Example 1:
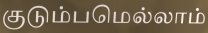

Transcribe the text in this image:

குடும்பமெல்லாம்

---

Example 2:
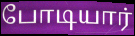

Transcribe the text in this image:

போடியார்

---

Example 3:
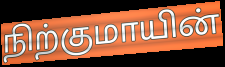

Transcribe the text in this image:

நிற்குமாயின்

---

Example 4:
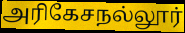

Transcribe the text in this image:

அரிகேசநல்லூர்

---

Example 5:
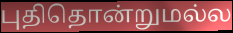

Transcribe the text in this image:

புதிதொன்றுமல்ல